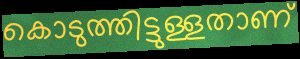
കൊടുത്തിട്ടുള്ളതാണ്